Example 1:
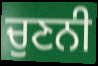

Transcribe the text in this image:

ਚੁਣਨੀ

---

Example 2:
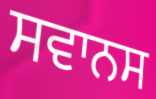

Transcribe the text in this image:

ਸਵਾਨਸ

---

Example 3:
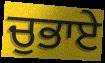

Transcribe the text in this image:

ਚੁਭਾਏ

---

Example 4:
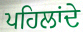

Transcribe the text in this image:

ਪਹਿਲਾਂਦੇ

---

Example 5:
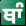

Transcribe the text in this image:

ਥਾੰ